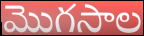
మొగసాల